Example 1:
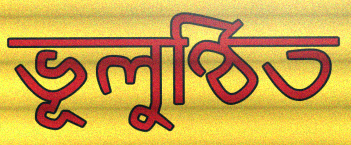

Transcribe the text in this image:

ভূলুণ্ঠিত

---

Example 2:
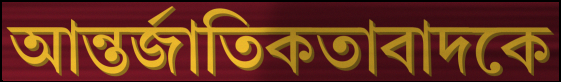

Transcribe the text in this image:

আন্তর্জাতিকতাবাদকে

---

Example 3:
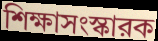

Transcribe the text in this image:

শিক্ষাসংস্কারক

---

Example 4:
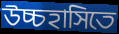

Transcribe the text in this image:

উচ্চহাসিতে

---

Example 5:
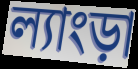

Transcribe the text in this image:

ল্যাংড়া